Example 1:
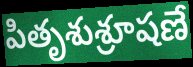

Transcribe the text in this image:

పితృశుశ్రూషణే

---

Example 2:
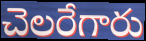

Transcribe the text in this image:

చెలరేగారు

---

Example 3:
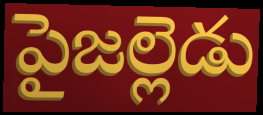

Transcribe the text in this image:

పైజల్లెడు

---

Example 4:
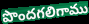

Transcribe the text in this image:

పొందగలిగాము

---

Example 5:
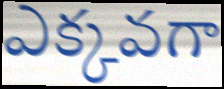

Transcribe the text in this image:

ఎక్కవగా